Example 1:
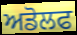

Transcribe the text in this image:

ਅਡੋਲਫ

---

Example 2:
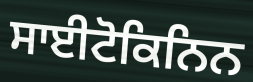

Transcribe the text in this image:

ਸਾਈਟੋਕਿਨਿਨ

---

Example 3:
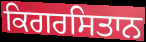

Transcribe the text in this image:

ਕਿਗਰਸਿਤਾਨ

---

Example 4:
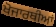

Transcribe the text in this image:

ਖੋਜਾਰਥੀਆਂ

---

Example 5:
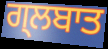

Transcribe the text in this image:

ਗ੍ਲਬਾਤ